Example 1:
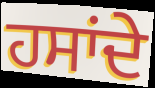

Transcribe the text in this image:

ਹਸਾਂਦੇ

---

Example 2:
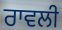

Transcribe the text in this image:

ਰਾਵਲੀ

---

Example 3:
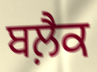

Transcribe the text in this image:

ਬਲ਼ੈਕ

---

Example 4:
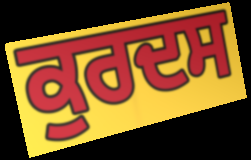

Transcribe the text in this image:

ਕੁਰਦਸ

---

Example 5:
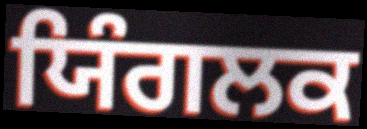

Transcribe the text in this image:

ਯਿੰਗਲਕ